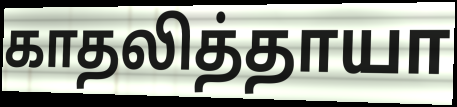
காதலித்தாயா